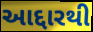
આદ્દારથી